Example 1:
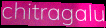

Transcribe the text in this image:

chitragalu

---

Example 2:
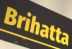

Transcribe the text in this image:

Brihatta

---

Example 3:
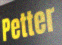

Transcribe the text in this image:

Petter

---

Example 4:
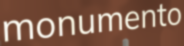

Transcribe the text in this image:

monumento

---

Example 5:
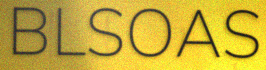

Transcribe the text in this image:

BLSOAS